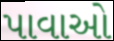
પાવાઓ